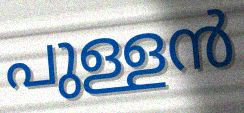
പുള്ളൻ